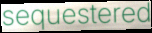
sequestered